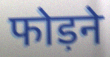
फोड़ने